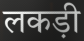
लकड़ी